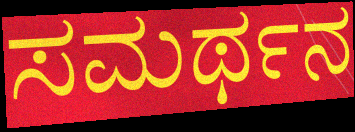
ಸಮರ್ಥನ